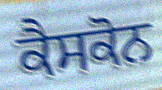
ਕੈਸਕੋਨ